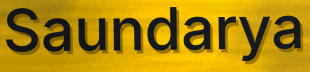
Saundarya